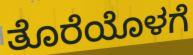
ತೊರೆಯೊಳಗೆ